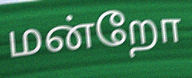
மன்றோ